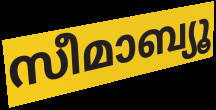
സീമാബ്യൂ